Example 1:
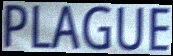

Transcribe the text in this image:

PLAGUE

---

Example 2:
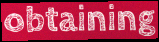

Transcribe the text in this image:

obtaining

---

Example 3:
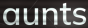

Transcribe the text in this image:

aunts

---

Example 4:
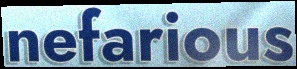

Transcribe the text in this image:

nefarious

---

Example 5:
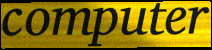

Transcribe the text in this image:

computer